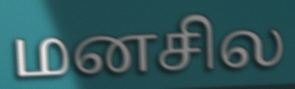
மனசில